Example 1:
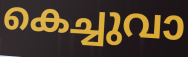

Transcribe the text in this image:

കെച്ചുവാ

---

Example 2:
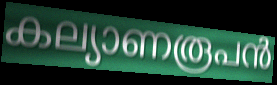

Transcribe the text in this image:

കല്യാണരൂപൻ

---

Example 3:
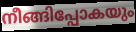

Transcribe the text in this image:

നീങ്ങിപ്പോകയും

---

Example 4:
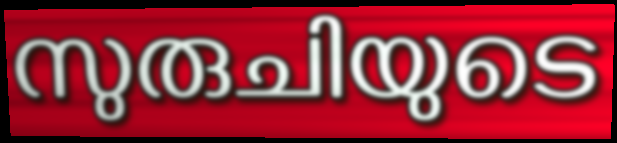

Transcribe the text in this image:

സുരുചിയുടെ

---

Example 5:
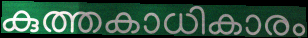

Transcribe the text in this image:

കുത്തകാധികാരം